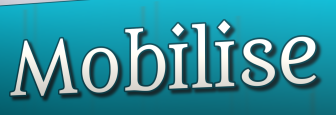
Mobilise